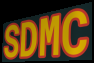
SDMC